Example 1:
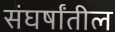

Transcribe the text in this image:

संघर्षांतील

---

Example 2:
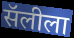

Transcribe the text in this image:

सॅलीला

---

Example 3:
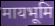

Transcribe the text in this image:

मायभूमि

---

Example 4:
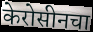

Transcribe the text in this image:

केरोसीनचा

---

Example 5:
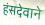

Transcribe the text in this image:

हंसदेवाने